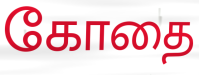
கோதை